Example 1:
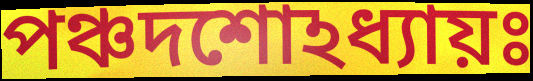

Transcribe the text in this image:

পঞ্চদশোঽধ্যায়ঃ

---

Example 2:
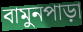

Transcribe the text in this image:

বামুনপাড়া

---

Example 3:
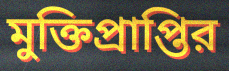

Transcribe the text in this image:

মুক্তিপ্রাপ্তির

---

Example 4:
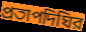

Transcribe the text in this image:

প্রতাপদিঘির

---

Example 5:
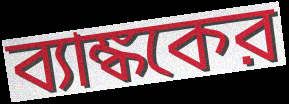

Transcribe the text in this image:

ব্যাঙ্ককের